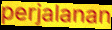
perjalanan